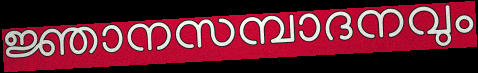
ജ്ഞാനസമ്പാദനവും